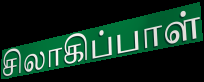
சிலாகிப்பாள்